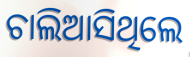
ଚାଲିଆସିଥିଲେ